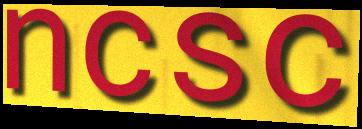
ncsc